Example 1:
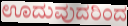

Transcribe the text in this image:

ಊದುವುದರಿಂದ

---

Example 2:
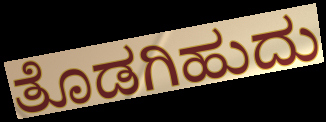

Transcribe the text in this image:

ತೊಡಗಿಹುದು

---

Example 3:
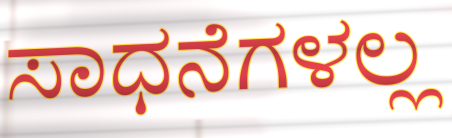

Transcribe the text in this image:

ಸಾಧನೆಗಳಲ್ಲ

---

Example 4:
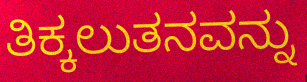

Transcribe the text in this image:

ತಿಕ್ಕಲುತನವನ್ನು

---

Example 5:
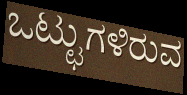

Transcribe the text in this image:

ಒಟ್ಟುಗಳಿರುವ